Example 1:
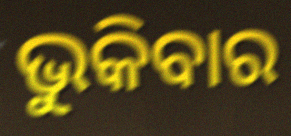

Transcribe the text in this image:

ଭୁକିବାର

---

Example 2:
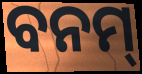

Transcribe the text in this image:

ବନମ୍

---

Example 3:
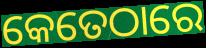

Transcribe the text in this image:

କେତେଠାରେ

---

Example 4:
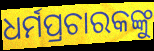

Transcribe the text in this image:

ଧର୍ମପ୍ରଚାରକଙ୍କୁ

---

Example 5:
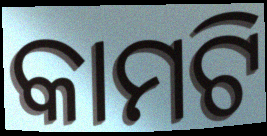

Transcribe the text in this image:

କାମଟି